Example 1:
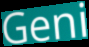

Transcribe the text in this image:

Geni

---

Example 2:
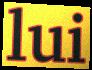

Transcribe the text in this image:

lui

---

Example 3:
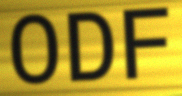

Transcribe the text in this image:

ODF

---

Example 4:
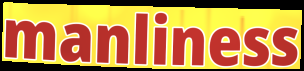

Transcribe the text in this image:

manliness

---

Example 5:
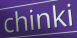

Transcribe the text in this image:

chinki